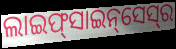
ଲାଇଫ୍‌ସାଇନ୍‌ସେସ୍‌ର